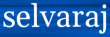
selvaraj